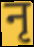
नृ